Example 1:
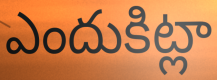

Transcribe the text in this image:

ఎందుకిట్లా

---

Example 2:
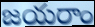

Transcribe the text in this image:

జయరాం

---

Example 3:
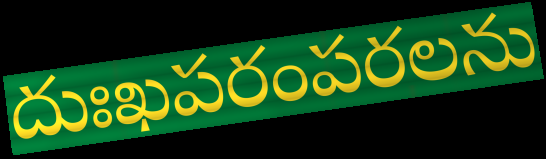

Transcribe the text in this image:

దుఃఖపరంపరలను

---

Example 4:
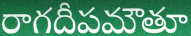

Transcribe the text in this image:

రాగదీపమౌతూ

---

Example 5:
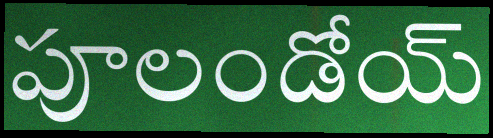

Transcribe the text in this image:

పూలండోయ్